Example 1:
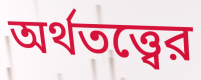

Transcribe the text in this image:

অর্থতত্ত্বের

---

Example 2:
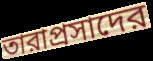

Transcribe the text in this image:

তারাপ্রসাদের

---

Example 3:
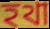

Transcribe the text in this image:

হথা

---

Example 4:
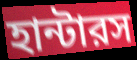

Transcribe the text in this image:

হান্টারস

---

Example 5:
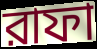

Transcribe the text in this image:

রাফা